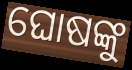
ଘୋଷଙ୍କୁ